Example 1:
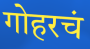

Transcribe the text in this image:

गोहरचं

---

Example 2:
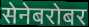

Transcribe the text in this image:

सेनेबरोबर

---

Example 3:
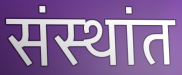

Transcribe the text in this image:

संस्थांत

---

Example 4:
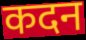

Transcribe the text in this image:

कदन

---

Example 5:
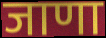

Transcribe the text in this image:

जाणा